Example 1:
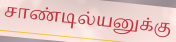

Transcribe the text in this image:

சாண்டில்யனுக்கு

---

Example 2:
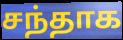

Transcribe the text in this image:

சந்தாக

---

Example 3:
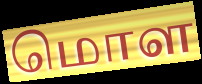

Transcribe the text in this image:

மொள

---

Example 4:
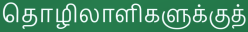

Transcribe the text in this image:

தொழிலாளிகளுக்குத்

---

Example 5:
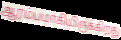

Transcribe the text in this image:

ஆரம்பமாகியிருக்கிறது